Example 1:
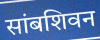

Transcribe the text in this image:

सांबशिवन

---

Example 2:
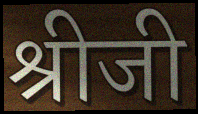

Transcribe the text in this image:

श्रीजी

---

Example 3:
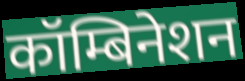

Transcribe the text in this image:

कॉम्बिनेशन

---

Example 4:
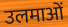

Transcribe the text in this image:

उलमाओं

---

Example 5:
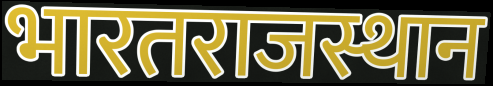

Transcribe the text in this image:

भारतराजस्थान